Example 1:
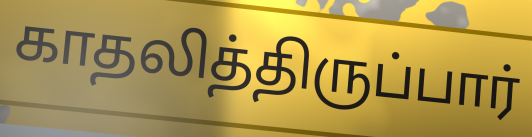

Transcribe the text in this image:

காதலித்திருப்பார்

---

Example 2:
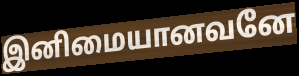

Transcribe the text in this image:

இனிமையானவனே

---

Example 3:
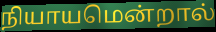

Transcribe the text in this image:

நியாயமென்றால்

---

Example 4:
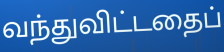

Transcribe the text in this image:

வந்துவிட்டதைப்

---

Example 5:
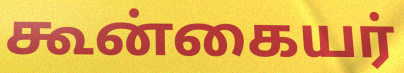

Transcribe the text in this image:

கூன்கையர்